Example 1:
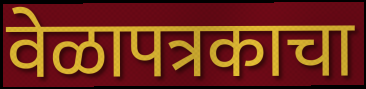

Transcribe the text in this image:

वेळापत्रकाचा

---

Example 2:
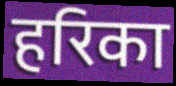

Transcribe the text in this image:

हरिका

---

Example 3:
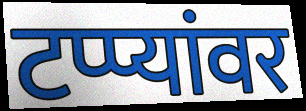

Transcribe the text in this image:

टप्प्यांवर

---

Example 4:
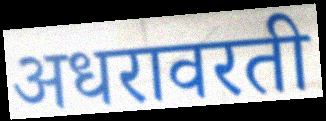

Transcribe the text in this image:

अधरावरती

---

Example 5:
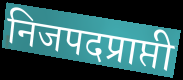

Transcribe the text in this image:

निजपदप्राप्ती